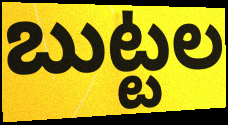
బుట్టల